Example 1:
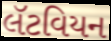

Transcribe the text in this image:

લૅટવિયન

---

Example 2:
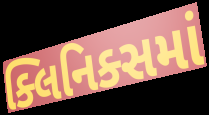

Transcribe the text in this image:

ક્લિનિક્સમાં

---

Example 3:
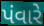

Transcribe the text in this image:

પંવારે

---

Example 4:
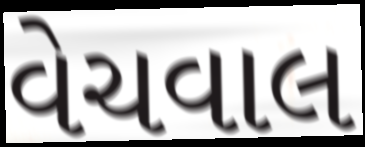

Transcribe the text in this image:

વેચવાલ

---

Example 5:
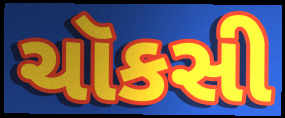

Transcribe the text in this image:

ચૉકસી